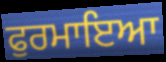
ਫੁਰਮਾਇਆ